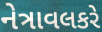
નેત્રાવલકરે